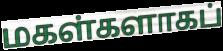
மகள்களாகப்